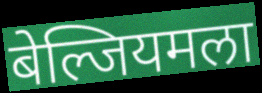
बेल्जियमला